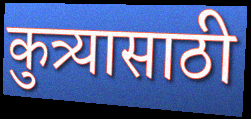
कुत्र्यासाठी